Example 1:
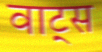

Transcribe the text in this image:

वाट्स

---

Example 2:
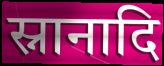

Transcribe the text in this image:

स्नानादि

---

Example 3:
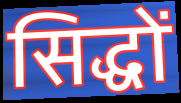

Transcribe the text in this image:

सिद्धों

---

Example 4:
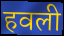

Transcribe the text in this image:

हवली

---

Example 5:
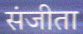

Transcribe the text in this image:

संजीता